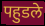
पहुडले